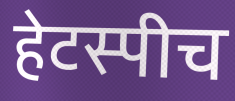
हेटस्पीच